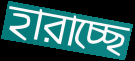
হারাচ্ছে